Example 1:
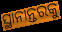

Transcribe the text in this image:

ସ୍ଥାନାନ୍ତରକୁ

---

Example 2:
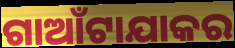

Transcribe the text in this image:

ଗାଆଁଟାଯାକର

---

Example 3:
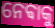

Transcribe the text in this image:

ନେଵାକୁ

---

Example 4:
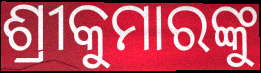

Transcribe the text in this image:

ଶ୍ରୀକୁମାରଙ୍କୁ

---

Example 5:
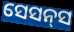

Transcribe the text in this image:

ସେସନ୍‌ସ